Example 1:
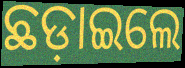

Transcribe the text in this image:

ଛଡ଼ାଇଲେ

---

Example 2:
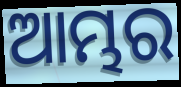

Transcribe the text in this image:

ଆମ୍ଭର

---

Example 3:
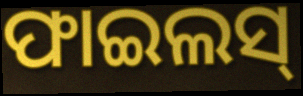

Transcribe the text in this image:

ଫାଇଲସ୍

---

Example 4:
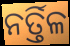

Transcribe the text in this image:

ନର୍ତ୍ତିଳ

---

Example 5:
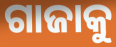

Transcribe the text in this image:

ଗାଜାକୁ